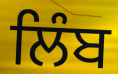
ਲਿੰਬ